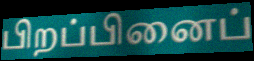
பிறப்பினைப்